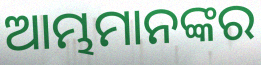
ଆମ୍ଭମାନଙ୍କର